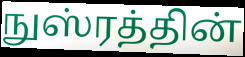
நுஸ்ரத்தின்